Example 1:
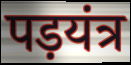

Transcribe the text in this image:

पड़यंत्र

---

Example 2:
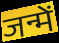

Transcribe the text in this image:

जन्में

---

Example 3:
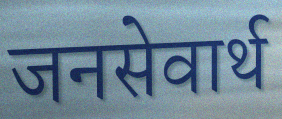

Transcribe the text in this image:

जनसेवार्थ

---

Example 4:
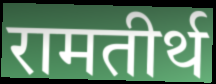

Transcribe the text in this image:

रामतीर्थ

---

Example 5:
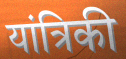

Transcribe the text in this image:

यांत्रिकी